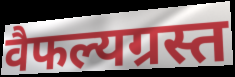
वैफल्यग्रस्त